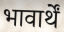
भावार्थें